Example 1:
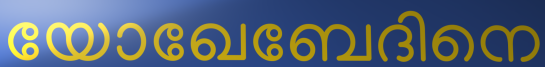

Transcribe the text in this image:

യോഖേബേദിനെ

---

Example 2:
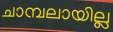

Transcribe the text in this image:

ചാമ്പലായില്ല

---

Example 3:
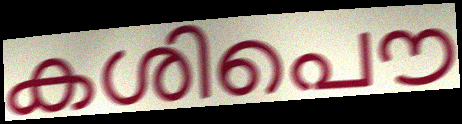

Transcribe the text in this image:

കശിപൌ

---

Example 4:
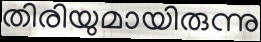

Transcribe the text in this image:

തിരിയുമായിരുന്നു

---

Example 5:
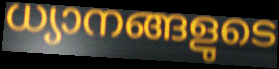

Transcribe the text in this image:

ധ്യാനങ്ങളുടെ